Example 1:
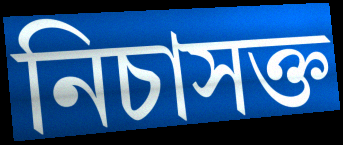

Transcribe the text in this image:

নিচাসক্ত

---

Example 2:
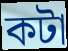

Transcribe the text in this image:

কটা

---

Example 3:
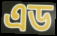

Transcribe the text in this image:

এড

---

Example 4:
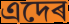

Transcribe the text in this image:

এদেৰ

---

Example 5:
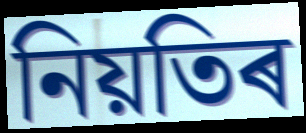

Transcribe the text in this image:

নিয়তিৰ